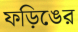
ফড়িঙের